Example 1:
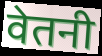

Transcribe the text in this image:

वेतनी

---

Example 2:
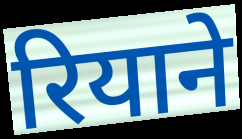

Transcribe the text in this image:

रियाने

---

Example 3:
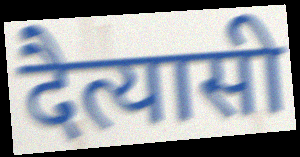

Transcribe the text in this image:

दैत्यासी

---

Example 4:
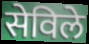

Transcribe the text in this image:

सेविले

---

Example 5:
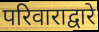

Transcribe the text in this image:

परिवाराद्वारे